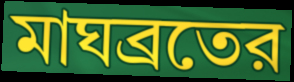
মাঘব্রতের